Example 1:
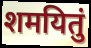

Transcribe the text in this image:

शमयितुं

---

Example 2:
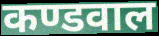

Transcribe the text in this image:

कण्डवाल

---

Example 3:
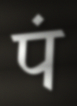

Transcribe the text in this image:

पं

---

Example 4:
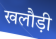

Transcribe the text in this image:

खलौड़ी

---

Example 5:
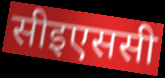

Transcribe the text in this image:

सीइएससी